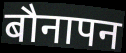
बौनापन